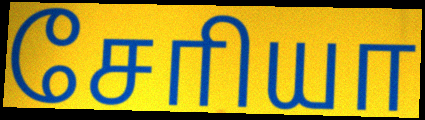
சேரியா